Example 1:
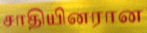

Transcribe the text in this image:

சாதியினரான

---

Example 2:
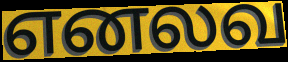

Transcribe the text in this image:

எனலவ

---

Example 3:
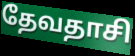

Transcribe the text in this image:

தேவதாசி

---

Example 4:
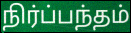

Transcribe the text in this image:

நிர்ப்பந்தம்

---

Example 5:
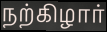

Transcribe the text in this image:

நற்கிழார்